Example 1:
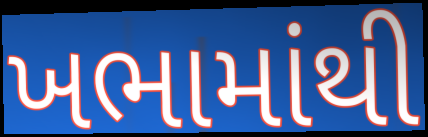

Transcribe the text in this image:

ખભામાંથી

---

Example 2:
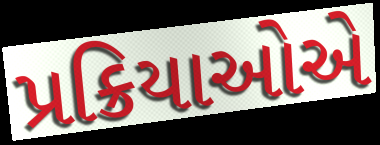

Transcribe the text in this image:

પ્રક્રિયાઓએ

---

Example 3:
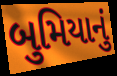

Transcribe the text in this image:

બુમિયાનું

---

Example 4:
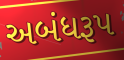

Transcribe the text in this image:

અબંધરૂપ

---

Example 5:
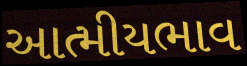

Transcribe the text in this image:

આત્મીયભાવ